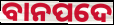
ବାନପଦେ